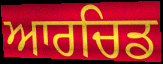
ਆਰਚਿਡ